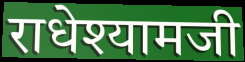
राधेश्यामजी